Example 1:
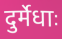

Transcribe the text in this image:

दुर्मेधाः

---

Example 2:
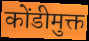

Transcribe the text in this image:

कोंडीमुक्त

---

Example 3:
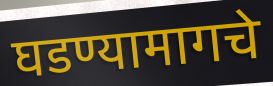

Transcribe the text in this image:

घडण्यामागचे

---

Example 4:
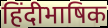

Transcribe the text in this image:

हिंदीभाषिक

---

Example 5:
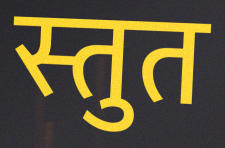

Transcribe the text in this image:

स्तुत